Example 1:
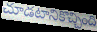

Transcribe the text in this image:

చూడటానికొచ్చింది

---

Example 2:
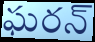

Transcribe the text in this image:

ఘరన్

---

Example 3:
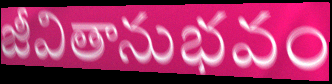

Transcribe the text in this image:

జీవితానుభవం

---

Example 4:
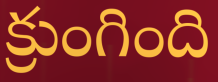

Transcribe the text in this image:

క్రుంగింది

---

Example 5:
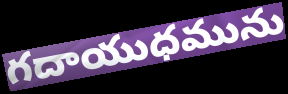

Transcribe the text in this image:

గదాయుధమును